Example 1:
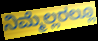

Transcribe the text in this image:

ನಿಮ್ಮೆಲ್ಲರಲ್ಲೂ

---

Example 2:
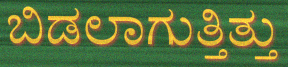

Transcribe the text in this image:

ಬಿಡಲಾಗುತ್ತಿತ್ತು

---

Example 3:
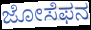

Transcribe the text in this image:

ಜೋಸೆಫನ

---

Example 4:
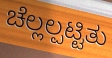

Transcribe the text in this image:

ಚೆಲ್ಲಲ್ಪಟ್ಟಿತು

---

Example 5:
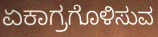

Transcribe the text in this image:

ಏಕಾಗ್ರಗೊಳಿಸುವ